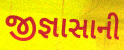
જીજ્ઞાસાની